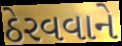
ઠેરવવાને